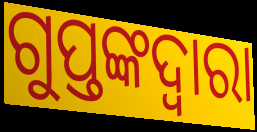
ଗୁପ୍ତଙ୍କଦ୍ୱାରା